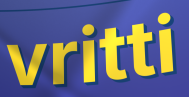
vritti